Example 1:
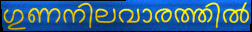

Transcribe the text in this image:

ഗുണനിലവാരത്തിൽ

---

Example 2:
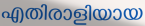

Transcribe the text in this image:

എതിരാളിയായ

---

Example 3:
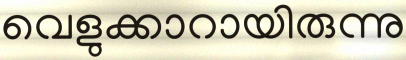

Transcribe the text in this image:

വെളുക്കാറായിരുന്നു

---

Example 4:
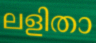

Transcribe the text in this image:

ലളിതാ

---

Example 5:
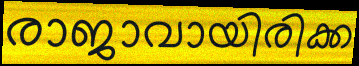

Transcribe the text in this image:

രാജാവായിരിക്ക